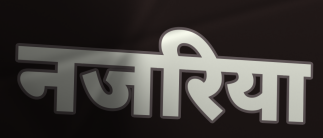
नजरिया